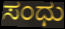
ಸಂಧು